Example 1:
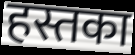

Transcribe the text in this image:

हस्तका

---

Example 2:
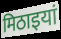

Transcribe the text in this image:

मिठाइयां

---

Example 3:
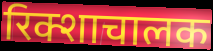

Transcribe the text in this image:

रिक्शाचालक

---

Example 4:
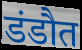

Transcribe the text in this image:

डंडौत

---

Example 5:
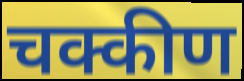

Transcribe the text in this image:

चक्कीण